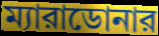
ম্যারাডোনার